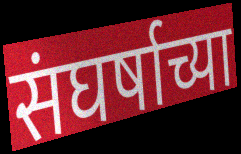
संघर्षाच्या